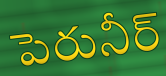
పెరునీర్